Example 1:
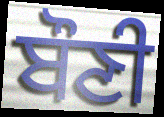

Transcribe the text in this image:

ਬੌਣੀ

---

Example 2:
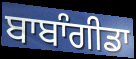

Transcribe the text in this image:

ਬਾਬਾੰਗੀਡਾ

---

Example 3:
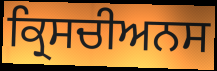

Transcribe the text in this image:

ਕ੍ਰਿਸਚੀਅਨਸ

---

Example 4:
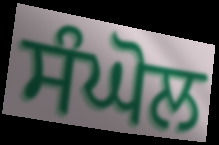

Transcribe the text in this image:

ਸੰਘੋਲ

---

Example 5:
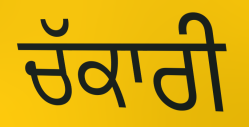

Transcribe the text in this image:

ਚੱਕਾਰੀ